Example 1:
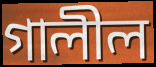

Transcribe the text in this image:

গালীল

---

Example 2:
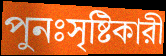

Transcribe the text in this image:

পুনঃসৃষ্টিকারী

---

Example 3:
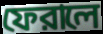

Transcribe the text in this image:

ফেরালে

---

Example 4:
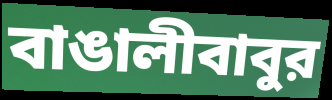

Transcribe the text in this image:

বাঙালীবাবুর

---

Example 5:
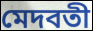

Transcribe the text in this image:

মেদবতী